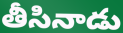
తీసినాడు